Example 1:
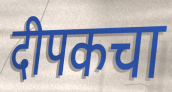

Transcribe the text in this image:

दीपकचा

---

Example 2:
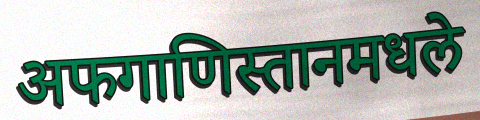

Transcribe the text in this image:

अफगाणिस्तानमधले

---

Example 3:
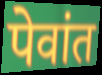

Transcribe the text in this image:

पेवांत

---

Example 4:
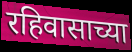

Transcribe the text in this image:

रहिवासाच्या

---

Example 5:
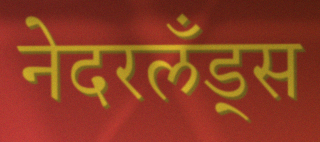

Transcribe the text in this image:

नेदरलँड्स